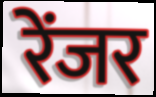
रेंजर